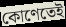
কোণেতেই